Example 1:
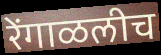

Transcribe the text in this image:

रेंगाळलीच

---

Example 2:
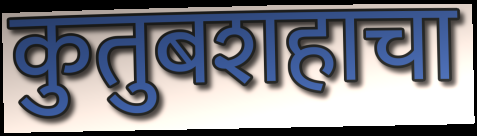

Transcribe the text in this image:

कुतुबशहाचा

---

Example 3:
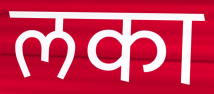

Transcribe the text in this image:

लका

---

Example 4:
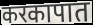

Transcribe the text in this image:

करकापात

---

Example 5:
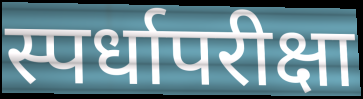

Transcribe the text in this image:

स्पर्धापरीक्षा